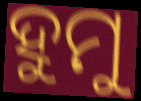
ହୁମୁ